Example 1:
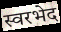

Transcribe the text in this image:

स्वरभेद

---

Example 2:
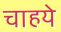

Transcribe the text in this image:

चाहये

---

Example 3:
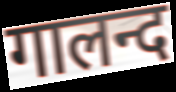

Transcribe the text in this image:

गालन्द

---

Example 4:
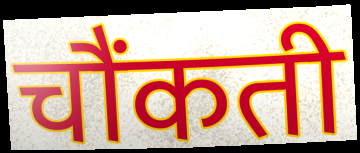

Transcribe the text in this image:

चौंकती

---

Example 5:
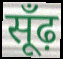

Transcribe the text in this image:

सूँढ़